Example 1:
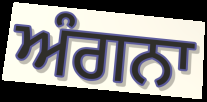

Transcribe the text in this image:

ਅੰਗਨਾ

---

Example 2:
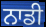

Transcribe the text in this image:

ਨਾਡੀ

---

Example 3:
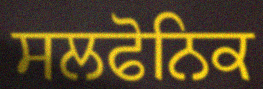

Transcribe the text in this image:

ਸਲਫੋਨਿਕ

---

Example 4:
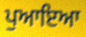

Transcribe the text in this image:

ਪੁਆਇਆ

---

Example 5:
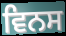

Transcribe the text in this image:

ਵਿਨਸ